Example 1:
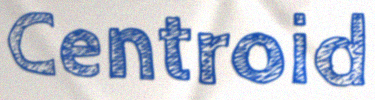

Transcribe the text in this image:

Centroid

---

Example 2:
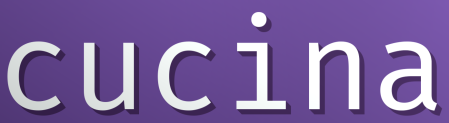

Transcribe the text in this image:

cucina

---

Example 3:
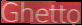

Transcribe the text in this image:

Ghetto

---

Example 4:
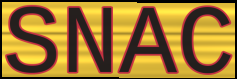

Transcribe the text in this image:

SNAC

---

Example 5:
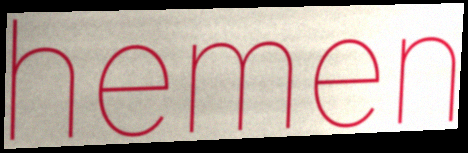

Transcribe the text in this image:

hemen